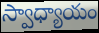
స్వాధ్యాయం